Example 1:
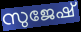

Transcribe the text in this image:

സുജേഷ്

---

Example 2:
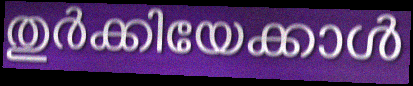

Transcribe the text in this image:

തുർക്കിയേക്കാൾ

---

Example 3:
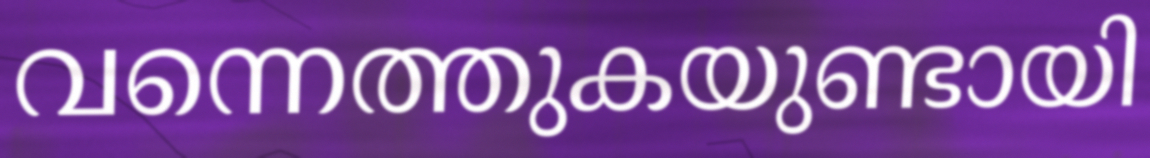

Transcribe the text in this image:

വന്നെത്തുകയുണ്ടായി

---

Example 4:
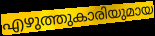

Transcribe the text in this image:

എഴുത്തുകാരിയുമായ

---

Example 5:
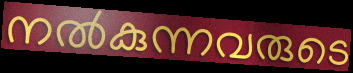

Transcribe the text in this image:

നൽകുന്നവരുടെ